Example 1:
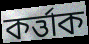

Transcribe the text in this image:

কৰ্ত্তাক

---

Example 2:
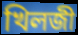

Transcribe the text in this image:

খিলজী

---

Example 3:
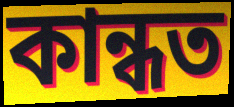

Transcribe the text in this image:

কান্ধত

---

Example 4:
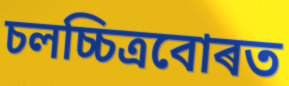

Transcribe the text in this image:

চলচ্চিত্ৰবোৰত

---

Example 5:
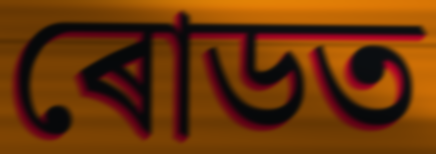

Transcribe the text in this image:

ৰোডত